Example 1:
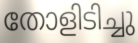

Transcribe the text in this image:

തോളിടിച്ചു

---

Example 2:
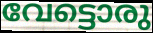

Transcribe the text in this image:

വേട്ടൊരു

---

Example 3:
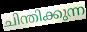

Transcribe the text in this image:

ചിന്തിക്കുന്ന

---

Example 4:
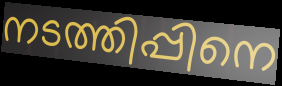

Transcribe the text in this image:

നടത്തിപ്പിനെ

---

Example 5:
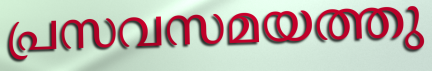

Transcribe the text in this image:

പ്രസവസമയത്തു